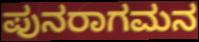
ಪುನರಾಗಮನ